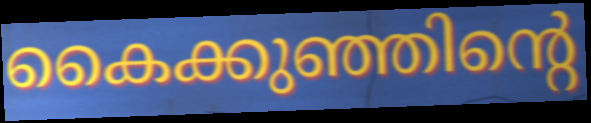
കൈക്കുഞ്ഞിന്റെ